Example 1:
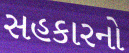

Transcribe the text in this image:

સહકારનો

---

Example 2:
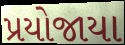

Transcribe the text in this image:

પ્રયોજાયા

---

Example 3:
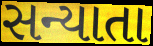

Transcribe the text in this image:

સન્યાતા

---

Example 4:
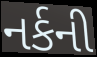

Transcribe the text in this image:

નર્કની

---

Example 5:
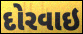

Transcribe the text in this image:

દોરવાઇ